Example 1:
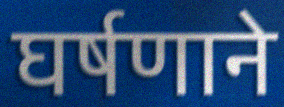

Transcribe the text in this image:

घर्षणाने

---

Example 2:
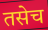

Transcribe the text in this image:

तसेच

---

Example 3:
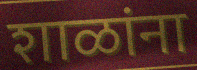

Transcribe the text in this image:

शाळांना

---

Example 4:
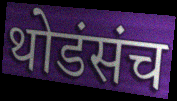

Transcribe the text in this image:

थोडंसंच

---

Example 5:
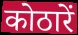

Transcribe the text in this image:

कोठारें